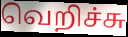
வெறிச்சு